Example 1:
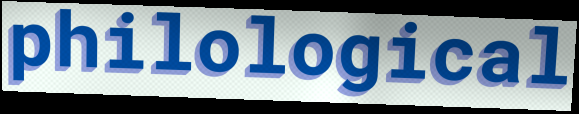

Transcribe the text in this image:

philological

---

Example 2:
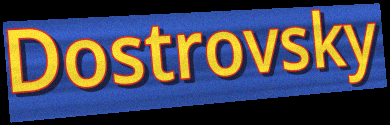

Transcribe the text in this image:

Dostrovsky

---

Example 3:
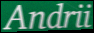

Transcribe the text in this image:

Andrii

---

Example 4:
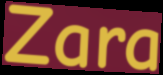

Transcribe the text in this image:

Zara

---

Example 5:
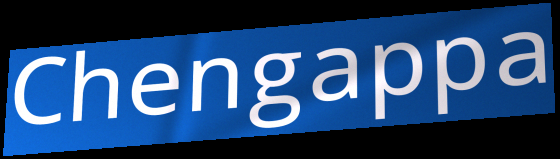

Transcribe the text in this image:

Chengappa